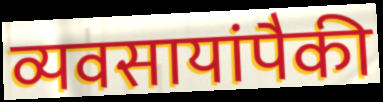
व्यवसायांपैकी